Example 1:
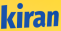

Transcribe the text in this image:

kiran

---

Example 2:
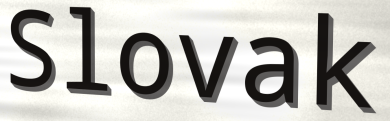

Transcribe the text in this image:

Slovak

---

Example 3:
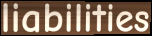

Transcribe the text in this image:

liabilities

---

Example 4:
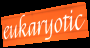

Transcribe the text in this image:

eukaryotic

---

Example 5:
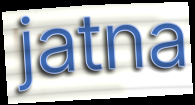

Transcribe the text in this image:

jatna